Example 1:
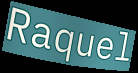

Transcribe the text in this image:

Raquel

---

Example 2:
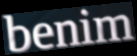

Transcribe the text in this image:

benim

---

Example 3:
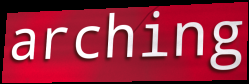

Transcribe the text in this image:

arching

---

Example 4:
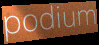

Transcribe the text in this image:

podium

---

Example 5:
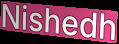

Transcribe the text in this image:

Nishedh